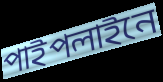
পাইপলাইনে